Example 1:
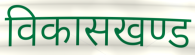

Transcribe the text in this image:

विकासखण्ड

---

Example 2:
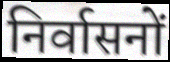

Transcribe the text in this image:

निर्वासनों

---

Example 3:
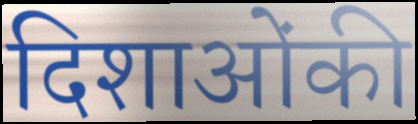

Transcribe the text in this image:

दिशाओंकी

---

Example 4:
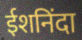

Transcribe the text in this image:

ईशनिंदा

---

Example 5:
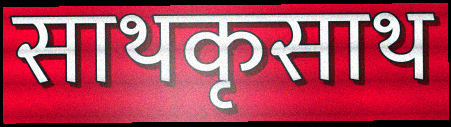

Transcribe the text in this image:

साथकृसाथ